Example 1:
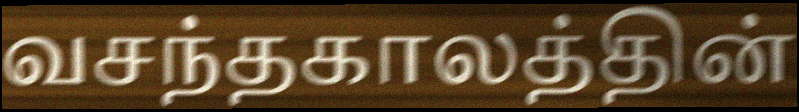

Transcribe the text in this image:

வசந்தகாலத்தின்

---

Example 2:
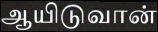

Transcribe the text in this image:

ஆயிடுவான்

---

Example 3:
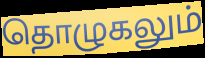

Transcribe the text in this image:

தொழுகலும்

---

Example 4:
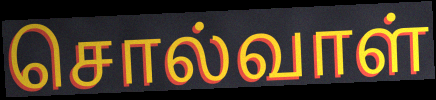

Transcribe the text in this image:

சொல்வாள்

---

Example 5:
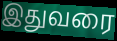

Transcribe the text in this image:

இதுவரை